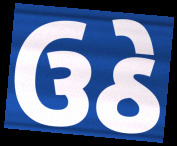
ઉઠે